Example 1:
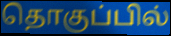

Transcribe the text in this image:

தொகுப்பில்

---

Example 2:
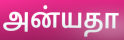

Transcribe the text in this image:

அன்யதா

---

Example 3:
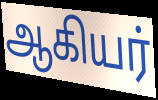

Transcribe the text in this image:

ஆகியர்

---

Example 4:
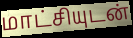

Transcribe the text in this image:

மாட்சியுடன்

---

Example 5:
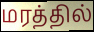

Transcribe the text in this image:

மரத்தில்